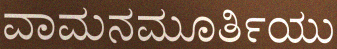
ವಾಮನಮೂರ್ತಿಯು